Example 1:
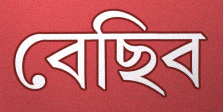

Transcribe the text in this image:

বেছিব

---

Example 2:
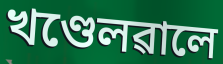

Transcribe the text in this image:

খণ্ডেলৱালে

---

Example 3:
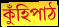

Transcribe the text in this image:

কুঁহিপাঠ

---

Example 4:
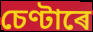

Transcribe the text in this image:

চেণ্টাৰে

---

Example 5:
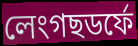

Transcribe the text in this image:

লেংগছডৰ্ফে